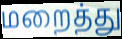
மறைத்து